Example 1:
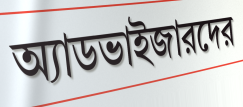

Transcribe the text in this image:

অ্যাডভাইজারদের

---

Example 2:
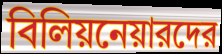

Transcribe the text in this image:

বিলিয়নেয়ারদের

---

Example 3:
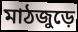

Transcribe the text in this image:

মাঠজুড়ে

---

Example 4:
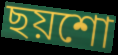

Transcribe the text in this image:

ছয়শো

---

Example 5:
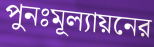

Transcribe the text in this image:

পুনঃমূল্যায়নের